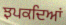
ਝਪਕਦਿਆਂ